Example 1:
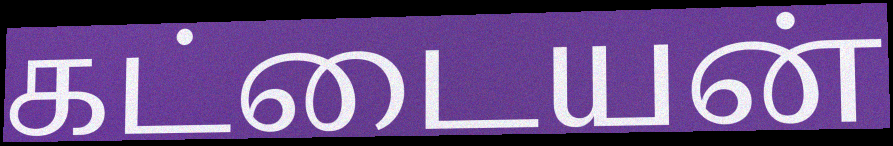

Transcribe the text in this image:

கட்டையன்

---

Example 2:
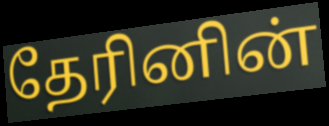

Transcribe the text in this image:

தேரினின்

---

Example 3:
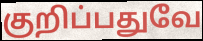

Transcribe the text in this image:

குறிப்பதுவே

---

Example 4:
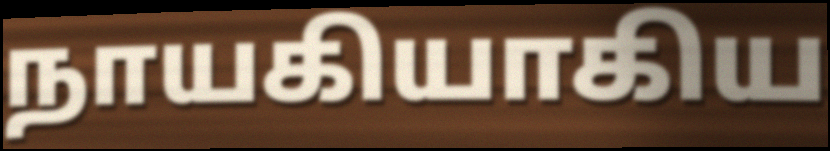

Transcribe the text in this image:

நாயகியாகிய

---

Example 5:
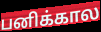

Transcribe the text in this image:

பனிக்கால